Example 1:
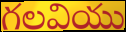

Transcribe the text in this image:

గలవియు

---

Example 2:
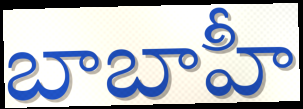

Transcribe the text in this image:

బాబాహీ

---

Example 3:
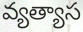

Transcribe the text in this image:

వ్యత్యాస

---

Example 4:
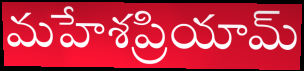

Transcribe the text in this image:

మహేశప్రియామ్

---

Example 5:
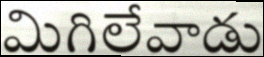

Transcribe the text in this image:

మిగిలేవాడు